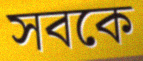
সবকে